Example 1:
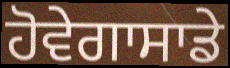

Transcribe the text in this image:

ਹੋਵੇਗਾਸਾਡੇ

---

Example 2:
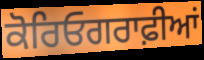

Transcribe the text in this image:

ਕੋਰਿਓਗਰਾਫ਼ੀਆਂ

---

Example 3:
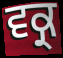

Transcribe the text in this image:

ਵਕ੍ਰ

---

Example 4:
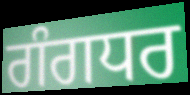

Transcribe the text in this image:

ਗੰਗਧਰ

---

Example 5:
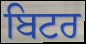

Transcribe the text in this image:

ਬਿਟਰ